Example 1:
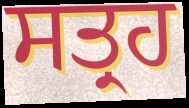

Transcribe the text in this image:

ਸਤ੍ਰਹ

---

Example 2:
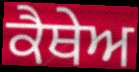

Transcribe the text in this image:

ਕੈਥੇਅ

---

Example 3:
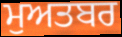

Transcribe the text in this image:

ਮੁਅਤਬਰ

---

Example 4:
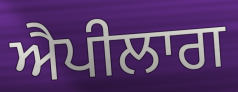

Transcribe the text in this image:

ਐਪੀਲਾਗ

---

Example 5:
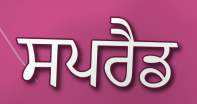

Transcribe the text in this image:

ਸਪਰੈਡ